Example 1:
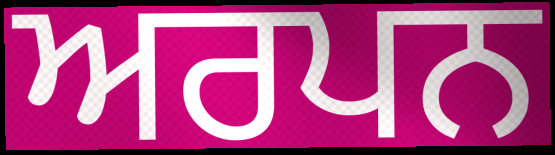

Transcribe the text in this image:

ਅਰਪਨ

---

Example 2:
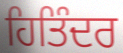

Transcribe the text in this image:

ਹਿਤਿੰਦਰ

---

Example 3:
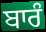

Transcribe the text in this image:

ਬਾਰੰ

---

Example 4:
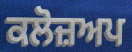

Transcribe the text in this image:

ਕਲੋਜ਼ਅਪ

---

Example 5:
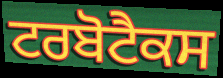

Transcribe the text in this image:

ਟਰਬੋਟੈਕਸ